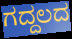
ಗದ್ದಲದ